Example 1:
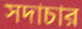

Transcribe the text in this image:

সদাচার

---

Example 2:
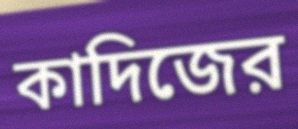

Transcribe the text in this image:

কাদিজের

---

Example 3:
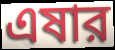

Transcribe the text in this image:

এষার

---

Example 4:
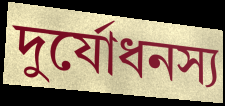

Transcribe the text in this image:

দুর্যোধনস্য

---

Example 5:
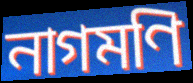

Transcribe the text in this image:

নাগমণি